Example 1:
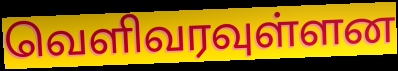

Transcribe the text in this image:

வெளிவரவுள்ளன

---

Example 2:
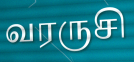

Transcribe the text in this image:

வரருசி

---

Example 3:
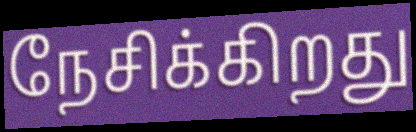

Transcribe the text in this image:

நேசிக்கிறது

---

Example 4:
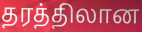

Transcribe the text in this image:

தரத்திலான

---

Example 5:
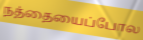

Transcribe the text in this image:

நத்தையைப்போல